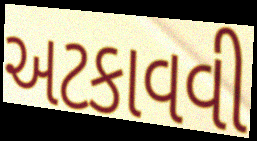
અટકાવવી